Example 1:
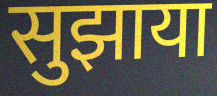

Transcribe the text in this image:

सुझाया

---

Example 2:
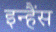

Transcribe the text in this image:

इन्हैंस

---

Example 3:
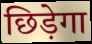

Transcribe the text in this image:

छिड़ेगा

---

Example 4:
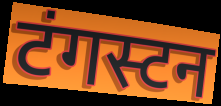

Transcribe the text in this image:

टंगस्टन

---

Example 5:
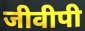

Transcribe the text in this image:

जीवीपी